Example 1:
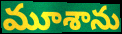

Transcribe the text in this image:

మూశాను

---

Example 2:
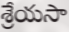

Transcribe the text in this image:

శ్రేయసా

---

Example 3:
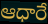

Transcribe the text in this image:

ఆధారే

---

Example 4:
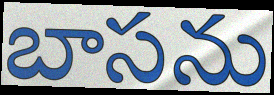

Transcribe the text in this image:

బాసను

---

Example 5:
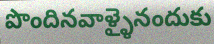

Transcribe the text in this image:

పొందినవాళ్ళైనందుకు